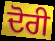
ਦੋਰੀ